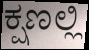
ಕ್ಷಣಲ್ಲಿ